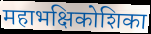
महाभक्षिकोशिका